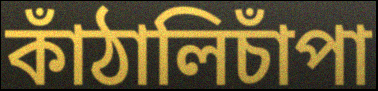
কাঁঠালিচাঁপা